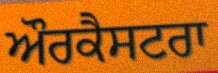
ਔਰਕੈਸਟਰਾ